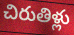
చిరుతిళ్లు